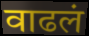
वाढलं